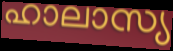
ഹാലാസ്യ